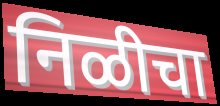
निळीचा